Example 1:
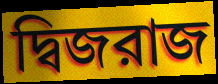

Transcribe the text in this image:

দ্বিজরাজ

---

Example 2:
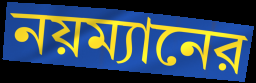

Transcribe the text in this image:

নয়ম্যানের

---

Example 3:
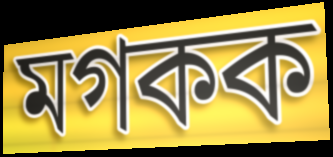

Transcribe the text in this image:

মগকক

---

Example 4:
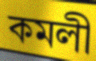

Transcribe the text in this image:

কমলী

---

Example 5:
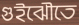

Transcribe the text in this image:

গুইঝৌতে